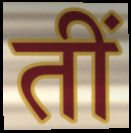
तीं